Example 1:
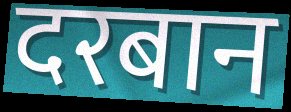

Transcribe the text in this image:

दरबान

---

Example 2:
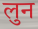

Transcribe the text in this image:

लुन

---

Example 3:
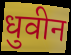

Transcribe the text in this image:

धुवीन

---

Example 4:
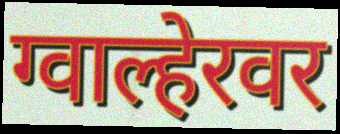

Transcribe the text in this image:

ग्वाल्हेरवर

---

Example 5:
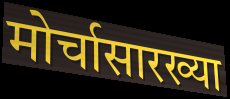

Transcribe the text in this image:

मोर्चासारख्या